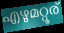
എഴുമറ്റൂര്